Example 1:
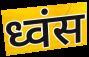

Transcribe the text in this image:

ध्वंस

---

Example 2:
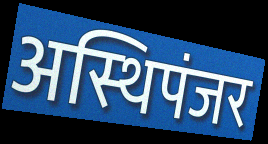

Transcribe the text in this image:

अस्थिपंजर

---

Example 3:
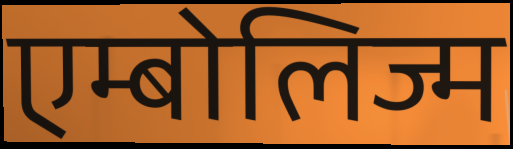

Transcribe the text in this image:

एम्बोलिज्म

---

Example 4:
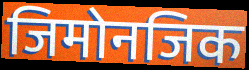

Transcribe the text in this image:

जिमोनजिक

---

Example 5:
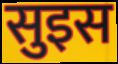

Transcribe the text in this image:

सुइस